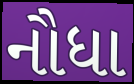
નૌધા